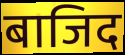
बाजिद